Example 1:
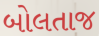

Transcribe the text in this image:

બોલતાજ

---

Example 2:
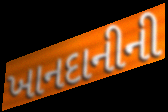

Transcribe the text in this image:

ખાનદાનીની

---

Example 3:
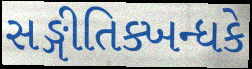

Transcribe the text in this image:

સઙ્ગીતિક્ખન્ધકે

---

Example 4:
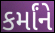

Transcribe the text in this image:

કર્માંને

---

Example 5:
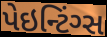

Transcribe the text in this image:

પેઇન્ટિંગ્સ